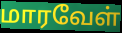
மாரவேள்